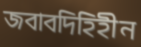
জবাবদিহিহীন